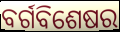
ବର୍ଗବିଶେଷର